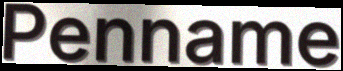
Penname